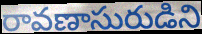
రావణాసురుడిని